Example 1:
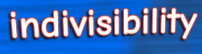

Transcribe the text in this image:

indivisibility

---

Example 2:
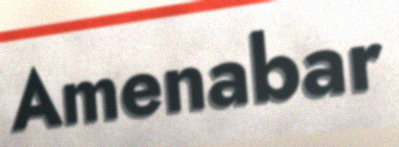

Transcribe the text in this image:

Amenabar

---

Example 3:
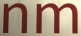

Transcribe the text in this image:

nm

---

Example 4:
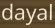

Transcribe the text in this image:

dayal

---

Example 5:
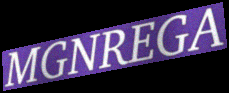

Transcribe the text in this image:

MGNREGA